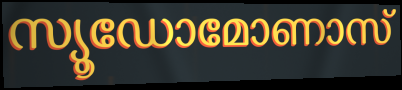
സ്യൂഡോമോണാസ്